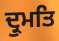
ਦ੍ਰੁਮਤਿ